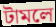
টামলে